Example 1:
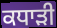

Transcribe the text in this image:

ਕਧਾੜੀ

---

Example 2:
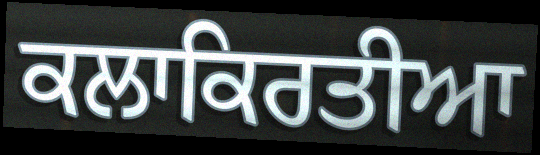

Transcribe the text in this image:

ਕਲਾਕਿਰਤੀਆ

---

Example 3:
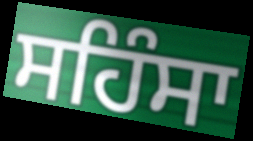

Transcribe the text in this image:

ਸਹਿੰਸਾ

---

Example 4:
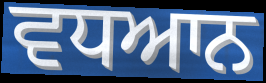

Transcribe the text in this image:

ਵਧਆਨ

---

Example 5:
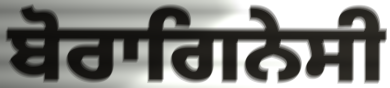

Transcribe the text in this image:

ਬੋਰਾਗਿਨੇਸੀ